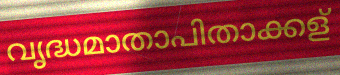
വൃദ്ധമാതാപിതാക്കള്